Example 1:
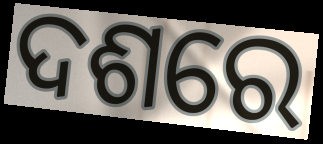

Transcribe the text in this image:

ଦଶରେ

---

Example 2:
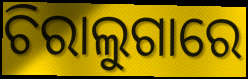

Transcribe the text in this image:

ଚିରାଲୁଗାରେ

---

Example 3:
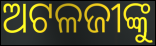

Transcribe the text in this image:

ଅଟଳଜୀଙ୍କୁ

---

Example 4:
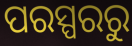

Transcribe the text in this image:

ପରସ୍ପରରୁ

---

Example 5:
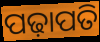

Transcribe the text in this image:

ପଢ଼ାପତି